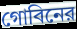
গোবিনের